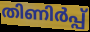
തിണിർപ്പ്